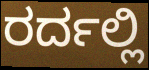
ರರ್ದಲ್ಲಿ